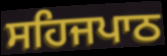
ਸਹਿਜਪਾਠ